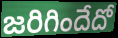
జరిగిందేదో